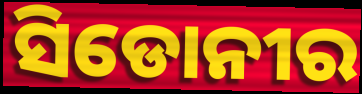
ସିଡୋନୀର